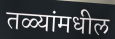
तळ्यांमधील